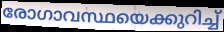
രോഗാവസ്ഥയെക്കുറിച്ച്